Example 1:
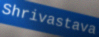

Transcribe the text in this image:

Shrivastava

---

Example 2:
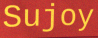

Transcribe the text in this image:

Sujoy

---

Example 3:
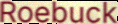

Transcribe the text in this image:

Roebuck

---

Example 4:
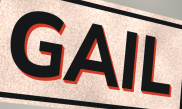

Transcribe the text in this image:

GAIL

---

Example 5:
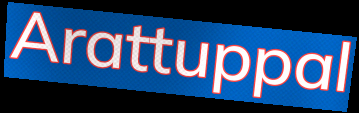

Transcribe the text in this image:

Arattuppal